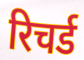
रिचर्ड